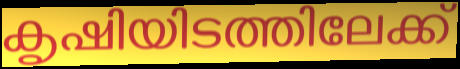
കൃഷിയിടത്തിലേക്ക്